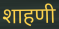
शाहणी